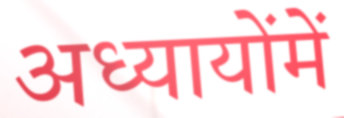
अध्यायोंमें